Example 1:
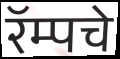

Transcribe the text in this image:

रॅम्पचे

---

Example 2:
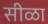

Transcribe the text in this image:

सीळा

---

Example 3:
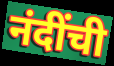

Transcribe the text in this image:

नंदींची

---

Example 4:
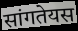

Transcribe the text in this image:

सांगतेयस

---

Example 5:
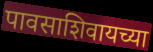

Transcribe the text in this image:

पावसाशिवायच्या